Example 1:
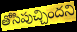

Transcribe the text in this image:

తోసిపుచ్చిందని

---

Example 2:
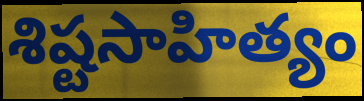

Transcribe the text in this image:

శిష్టసాహిత్యం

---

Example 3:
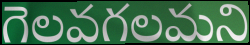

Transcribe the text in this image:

గెలవగలమని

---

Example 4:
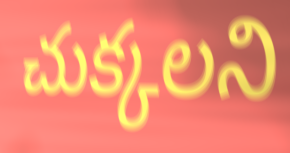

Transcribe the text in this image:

చుక్కలని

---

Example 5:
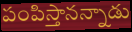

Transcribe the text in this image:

పంపిస్తానన్నాడు